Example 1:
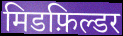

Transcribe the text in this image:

मिडफ़िल्डर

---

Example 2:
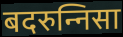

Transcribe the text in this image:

बदरुन्निसा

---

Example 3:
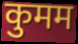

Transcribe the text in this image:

कुमम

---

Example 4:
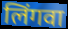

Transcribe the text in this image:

लिंगवा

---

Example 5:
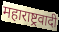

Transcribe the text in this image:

महाराष्ट्रवादी